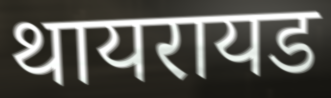
थायरायड